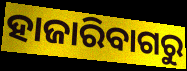
ହାଜାରିବାଗରୁ